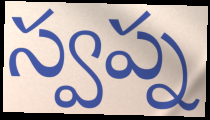
స్వప్న